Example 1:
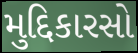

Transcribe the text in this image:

મુદ્દિકારસો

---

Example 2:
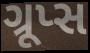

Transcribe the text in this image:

ગ્રૂપ્સ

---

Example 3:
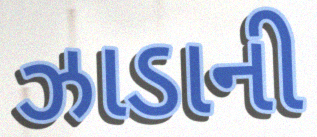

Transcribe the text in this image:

ઝાડાની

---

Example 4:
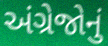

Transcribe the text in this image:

અંગ્રેજોનું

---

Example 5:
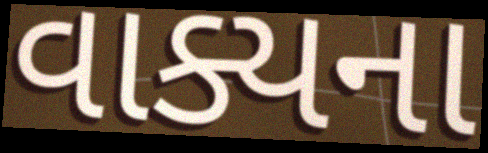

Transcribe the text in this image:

વાક્યના